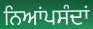
ਨਿਆਂਪਸੰਦਾਂ